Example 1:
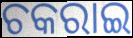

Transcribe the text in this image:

ଚକରାଇ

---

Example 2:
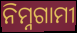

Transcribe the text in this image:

ନିମ୍ନଗାମୀ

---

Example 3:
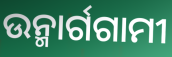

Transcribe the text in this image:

ଉନ୍ମାର୍ଗଗାମୀ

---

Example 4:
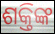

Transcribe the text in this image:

ଶକ୍ତିଙ୍କ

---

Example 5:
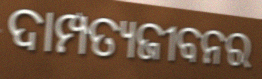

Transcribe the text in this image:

ଦାମ୍ପତ୍ୟଜୀବନର